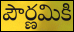
పౌర్ణమికి